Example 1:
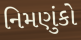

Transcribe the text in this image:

નિમણુંકો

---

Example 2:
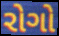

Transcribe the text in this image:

રોગો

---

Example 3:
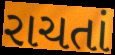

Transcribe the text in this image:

રાચતાં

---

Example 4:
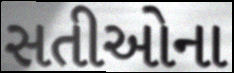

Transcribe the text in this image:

સતીઓના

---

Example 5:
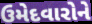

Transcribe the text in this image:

ઉમેદવારોને